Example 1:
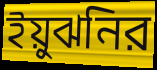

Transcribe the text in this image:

ইয়ুঝনির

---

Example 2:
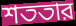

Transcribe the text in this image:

শততার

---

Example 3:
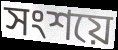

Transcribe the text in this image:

সংশয়ে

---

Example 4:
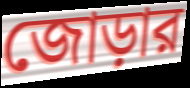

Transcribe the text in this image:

জোড়ার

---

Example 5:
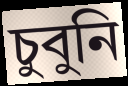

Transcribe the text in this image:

চুবুনি